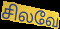
சிலவே